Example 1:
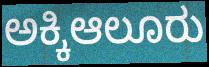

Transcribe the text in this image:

ಅಕ್ಕಿಆಲೂರು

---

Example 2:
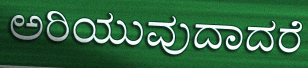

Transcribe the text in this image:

ಅರಿಯುವುದಾದರೆ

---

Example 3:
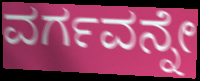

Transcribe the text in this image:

ವರ್ಗವನ್ನೇ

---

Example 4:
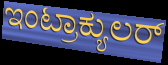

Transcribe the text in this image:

ಇಂಟ್ರಾಕ್ಯುಲರ್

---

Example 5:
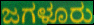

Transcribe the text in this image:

ಜಗಳೂರು